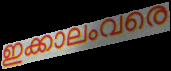
ഇക്കാലംവരെ